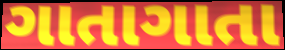
ગાતાગાતા